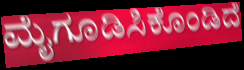
ಮೈಗೂಡಿಸಿಕೊಂಡಿದೆ